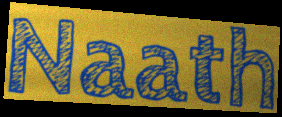
Naath